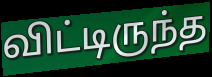
விட்டிருந்த